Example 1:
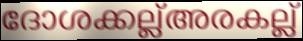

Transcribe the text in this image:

ദോശക്കല്ല്അരകല്ല്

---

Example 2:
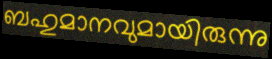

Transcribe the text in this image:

ബഹുമാനവുമായിരുന്നു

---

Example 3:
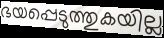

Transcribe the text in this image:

ഭയപ്പെടുത്തുകയില്ല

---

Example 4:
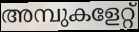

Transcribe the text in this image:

അമ്പുകളേറ്റ്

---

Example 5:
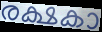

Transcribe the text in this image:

രക്ഷകാ